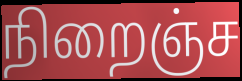
நிறைஞ்ச